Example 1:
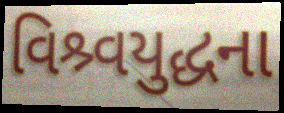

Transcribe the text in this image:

વિશ્ર્વયુદ્ધના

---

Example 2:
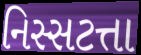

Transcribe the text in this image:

નિસ્સટત્તા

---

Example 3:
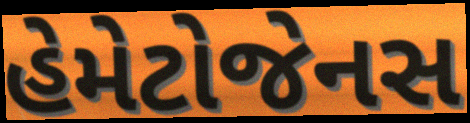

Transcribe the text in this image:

હેમેટોજેનસ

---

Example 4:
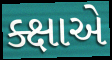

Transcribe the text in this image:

ક્ક્ષાએ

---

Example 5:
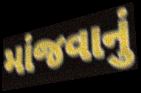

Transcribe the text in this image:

માંજવાનું